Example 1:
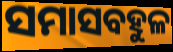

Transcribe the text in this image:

ସମାସବହୁଳ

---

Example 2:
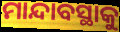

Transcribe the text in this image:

ମାନ୍ଦାବସ୍ଥାକୁ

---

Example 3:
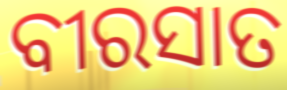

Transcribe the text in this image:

ବୀରସାତ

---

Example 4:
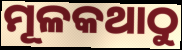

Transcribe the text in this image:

ମୂଳକଥାଠୁ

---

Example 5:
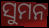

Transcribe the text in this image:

ସୁମନ